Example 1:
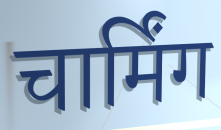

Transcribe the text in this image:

चार्मिंग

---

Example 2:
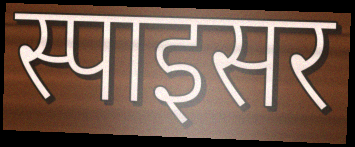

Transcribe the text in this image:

स्पाइसर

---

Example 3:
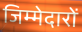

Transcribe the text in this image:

जिम्मेदारों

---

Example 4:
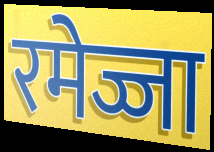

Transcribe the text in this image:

रमेज्जा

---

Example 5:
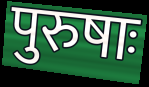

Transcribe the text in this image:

पुरुषाः